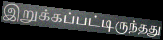
இறுக்கப்பட்டிருந்தது